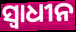
ସ୍ବାଧୀନ